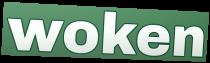
woken